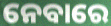
ନେବାରେ